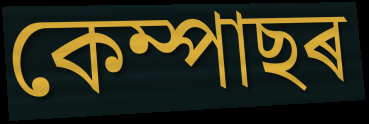
কেম্পাছৰ